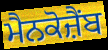
ਮੈਨਕੋਜ਼ੈਂਬ